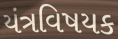
યંત્રવિષયક